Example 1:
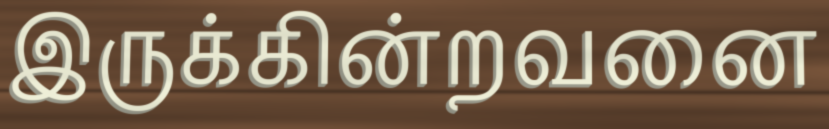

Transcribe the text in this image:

இருக்கின்றவனை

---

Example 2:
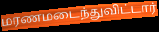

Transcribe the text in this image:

மரணமடைந்துவிட்டார்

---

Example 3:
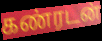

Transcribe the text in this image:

கண்ரடன்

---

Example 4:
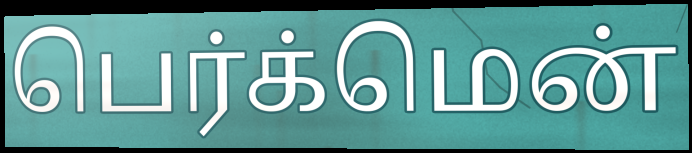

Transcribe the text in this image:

பெர்க்மென்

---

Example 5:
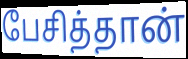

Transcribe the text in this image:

பேசித்தான்